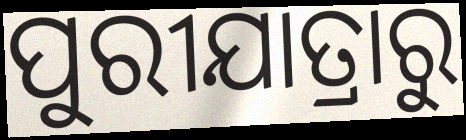
ପୁରୀଯାତ୍ରାରୁ